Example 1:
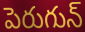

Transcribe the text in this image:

పెరుగున్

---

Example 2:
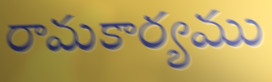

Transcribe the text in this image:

రామకార్యము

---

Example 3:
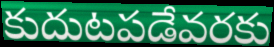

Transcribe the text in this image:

కుదుటపడేవరకు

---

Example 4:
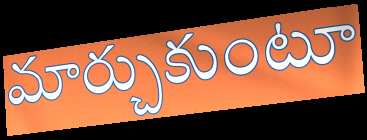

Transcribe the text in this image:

మార్చుకుంటూ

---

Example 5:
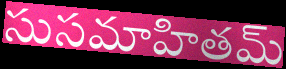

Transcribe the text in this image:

సుసమాహితమ్